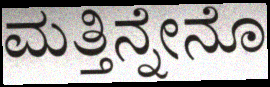
ಮತ್ತಿನ್ನೇನೊ